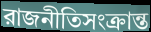
রাজনীতিসংক্রান্ত